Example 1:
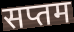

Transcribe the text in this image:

सप्तम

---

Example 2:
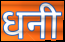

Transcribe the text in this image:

धनी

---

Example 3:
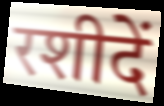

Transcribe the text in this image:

रशीदें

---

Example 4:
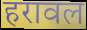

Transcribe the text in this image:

हरावल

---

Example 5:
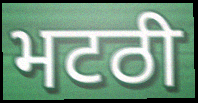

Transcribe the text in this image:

भटठी